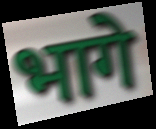
भागे